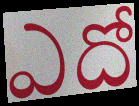
ఎదో